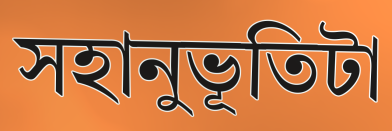
সহানুভূতিটা